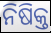
ନିଷିକ୍ତ